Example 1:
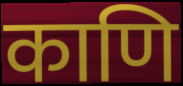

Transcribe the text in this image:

काणि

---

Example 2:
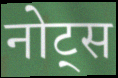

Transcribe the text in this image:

नोट्‌स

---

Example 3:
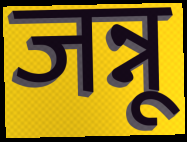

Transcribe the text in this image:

जन्नू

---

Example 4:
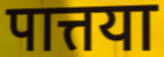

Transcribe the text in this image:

पात्तया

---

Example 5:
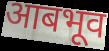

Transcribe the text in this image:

आबभूव